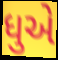
ધુએ